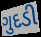
ગુદડી